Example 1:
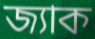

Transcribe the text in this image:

জ্যাক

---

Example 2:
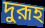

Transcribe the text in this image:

দুরূহ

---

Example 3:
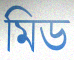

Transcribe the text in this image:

মিড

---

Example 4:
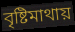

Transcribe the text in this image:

বৃষ্টিমাথায়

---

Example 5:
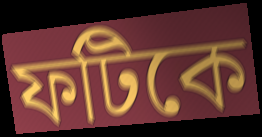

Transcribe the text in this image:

ফটিকে